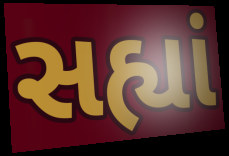
સહ્યાં